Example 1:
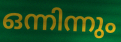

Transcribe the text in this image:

ഒന്നിന്നും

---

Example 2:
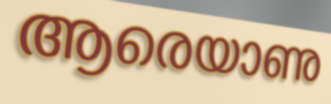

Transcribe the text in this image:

ആരെയാണു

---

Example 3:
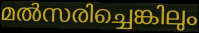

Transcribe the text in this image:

മൽസരിച്ചെങ്കിലും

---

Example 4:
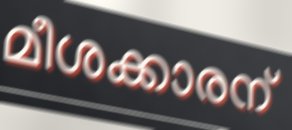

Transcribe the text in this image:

മീശക്കാരന്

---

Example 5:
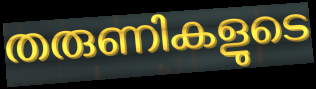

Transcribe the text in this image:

തരുണികളുടെ